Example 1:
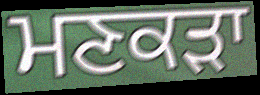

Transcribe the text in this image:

ਮਣਕੜਾ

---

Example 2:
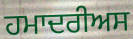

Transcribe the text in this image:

ਹਮਾਦਰੀਅਸ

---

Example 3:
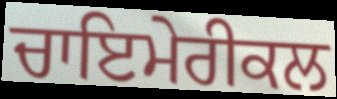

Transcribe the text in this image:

ਚਾਇਮੇਰੀਕਲ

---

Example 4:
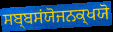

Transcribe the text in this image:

ਸਬ੍ਬਸਂਯੋਜਨਕ੍ਖਯੋ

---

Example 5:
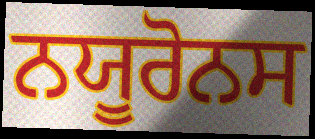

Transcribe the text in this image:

ਨਯੂਰੋਨਸ